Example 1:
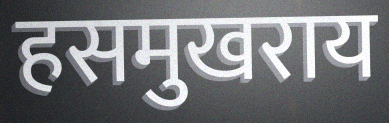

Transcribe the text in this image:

हसमुखराय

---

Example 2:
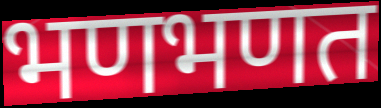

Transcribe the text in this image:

भणभणत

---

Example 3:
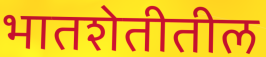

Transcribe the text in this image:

भातशेतीतील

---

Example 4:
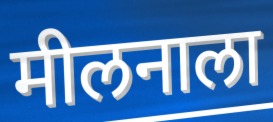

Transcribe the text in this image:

मीलनाला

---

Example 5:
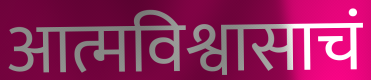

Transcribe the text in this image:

आत्मविश्वासाचं